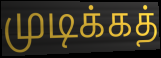
முடிக்கத்